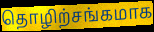
தொழிற்சங்கமாக